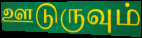
ஊடுருவும்